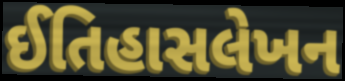
ઈતિહાસલેખન